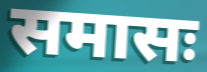
समासः